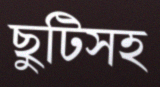
ছুটিসহ